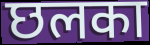
छलका